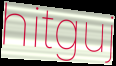
hitguj